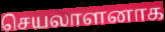
செயலாளனாக